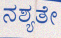
ನಶ್ಯತೇ